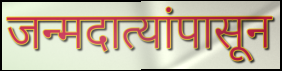
जन्मदात्यांपासून